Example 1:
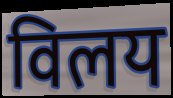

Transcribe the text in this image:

विलय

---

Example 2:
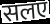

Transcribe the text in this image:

सलए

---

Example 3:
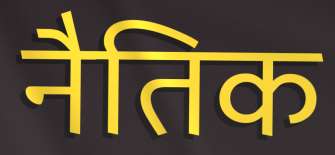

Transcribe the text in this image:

नैतिक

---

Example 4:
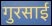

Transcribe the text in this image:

गुरसाई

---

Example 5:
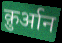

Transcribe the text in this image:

क़ुर्आन